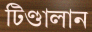
টিণ্ডালান